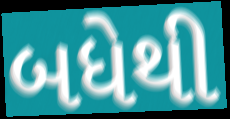
બધેથી